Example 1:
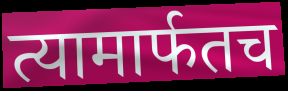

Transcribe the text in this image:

त्यामार्फतच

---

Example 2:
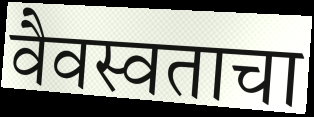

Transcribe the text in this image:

वैवस्वताचा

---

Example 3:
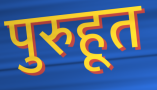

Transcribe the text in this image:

पुरुहूत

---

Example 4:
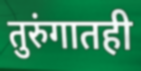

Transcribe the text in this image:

तुरुंगातही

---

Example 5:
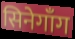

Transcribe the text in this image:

सिनेगाँग